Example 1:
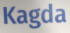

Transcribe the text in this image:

Kagda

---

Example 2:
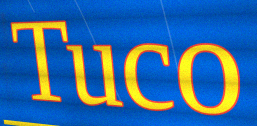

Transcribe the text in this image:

Tuco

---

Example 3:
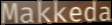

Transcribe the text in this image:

Makkeda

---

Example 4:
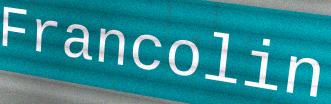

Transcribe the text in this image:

Francolin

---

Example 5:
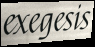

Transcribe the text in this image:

exegesis